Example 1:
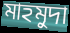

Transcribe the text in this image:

মাহমুদা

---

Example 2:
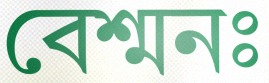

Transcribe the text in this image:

বেশ্মনঃ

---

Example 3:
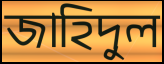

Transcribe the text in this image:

জাহিদুল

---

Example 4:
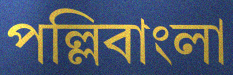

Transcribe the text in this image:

পল্লিবাংলা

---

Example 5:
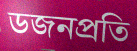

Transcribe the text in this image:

ডজনপ্রতি